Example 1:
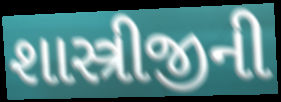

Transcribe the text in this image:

શાસ્ત્રીજીની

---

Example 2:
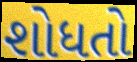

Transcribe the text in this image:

શોધતો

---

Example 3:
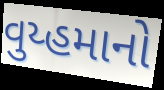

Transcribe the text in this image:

વુય્હમાનો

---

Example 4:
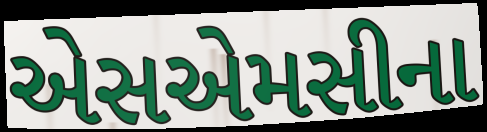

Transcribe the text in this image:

એસએમસીના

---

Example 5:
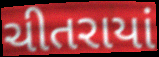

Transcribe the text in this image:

ચીતરાયાં